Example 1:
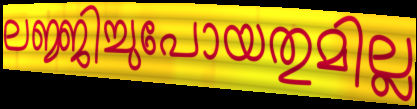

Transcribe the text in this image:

ലജ്ജിച്ചുപോയതുമില്ല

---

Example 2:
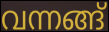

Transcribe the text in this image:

വന്നങ്ങ്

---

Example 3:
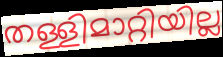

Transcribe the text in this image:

തള്ളിമാറ്റിയില്ല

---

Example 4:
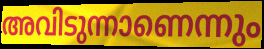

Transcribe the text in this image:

അവിടുന്നാണെന്നും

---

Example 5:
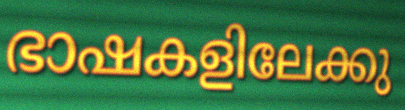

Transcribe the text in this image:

ഭാഷകളിലേക്കു